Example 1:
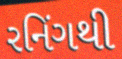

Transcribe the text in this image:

રનિંગથી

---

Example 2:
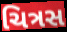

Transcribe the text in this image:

ચિત્રસ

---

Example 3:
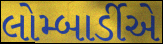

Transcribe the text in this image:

લોમ્બાર્ડીએ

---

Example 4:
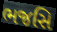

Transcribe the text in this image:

ભજસિ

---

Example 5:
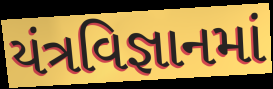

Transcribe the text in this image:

યંત્રવિજ્ઞાનમાં